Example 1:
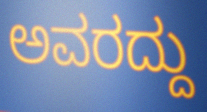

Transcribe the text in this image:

ಅವರದ್ದು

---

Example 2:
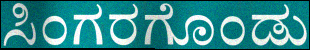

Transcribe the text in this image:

ಸಿಂಗರಗೊಂಡು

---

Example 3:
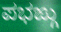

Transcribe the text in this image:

ಪಭಙ್ಗು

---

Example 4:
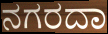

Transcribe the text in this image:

ನಗರದಾ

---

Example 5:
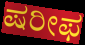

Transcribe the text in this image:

ಷರೀಫ